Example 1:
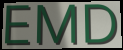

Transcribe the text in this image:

EMD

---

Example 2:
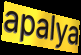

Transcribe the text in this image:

apalya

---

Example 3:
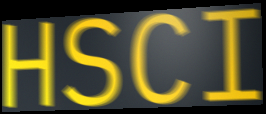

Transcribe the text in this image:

HSCI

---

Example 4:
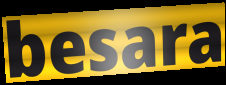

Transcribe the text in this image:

besara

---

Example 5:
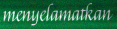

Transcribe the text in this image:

menyelamatkan